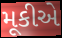
મૂકીએ